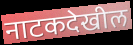
नाटकदेखील